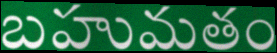
బహుమతం